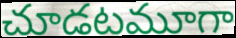
చూడటమూగా